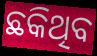
ଛକିଥିବ